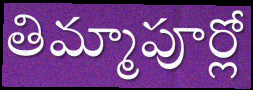
తిమ్మాపూర్లో